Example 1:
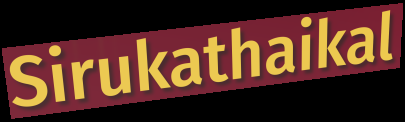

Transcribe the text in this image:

Sirukathaikal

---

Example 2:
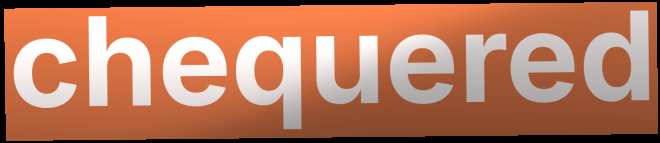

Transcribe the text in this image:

chequered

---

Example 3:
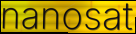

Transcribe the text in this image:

nanosat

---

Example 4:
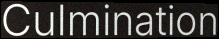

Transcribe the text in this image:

Culmination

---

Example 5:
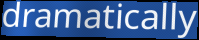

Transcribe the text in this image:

dramatically